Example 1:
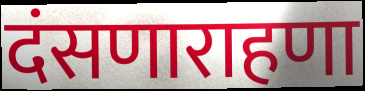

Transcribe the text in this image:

दंसणाराहणा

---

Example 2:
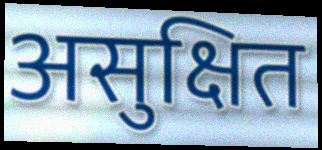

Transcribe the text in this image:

असुक्षित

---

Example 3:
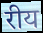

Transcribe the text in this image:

रीय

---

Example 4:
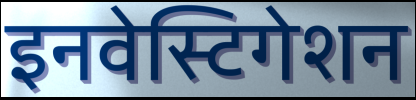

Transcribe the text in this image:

इनवेस्टिगेशन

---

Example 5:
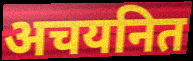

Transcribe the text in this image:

अचयनित